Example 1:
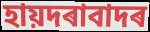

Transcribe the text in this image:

হায়দৰাবাদৰ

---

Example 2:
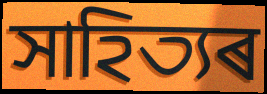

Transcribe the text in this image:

সাহিত্যৰ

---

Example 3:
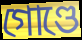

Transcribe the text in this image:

গোণ্ডে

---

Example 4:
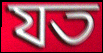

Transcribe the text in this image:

যত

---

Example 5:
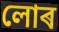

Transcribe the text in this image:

লোৰ